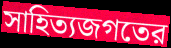
সাহিত্যজগতের